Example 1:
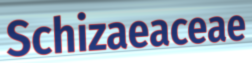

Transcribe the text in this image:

Schizaeaceae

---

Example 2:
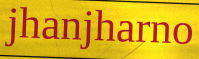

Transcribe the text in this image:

jhanjharno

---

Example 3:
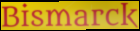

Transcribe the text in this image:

Bismarck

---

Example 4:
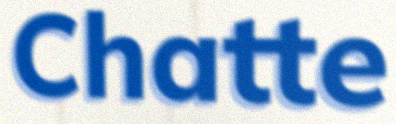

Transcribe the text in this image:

Chatte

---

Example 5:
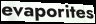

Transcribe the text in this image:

evaporites